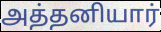
அத்தனியார்